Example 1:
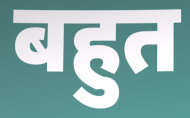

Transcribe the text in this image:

बहुत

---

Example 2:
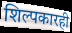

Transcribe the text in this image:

शिल्पकारही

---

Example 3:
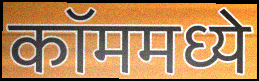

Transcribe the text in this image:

कॉममध्ये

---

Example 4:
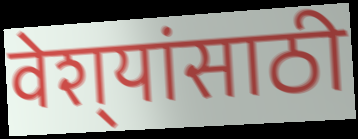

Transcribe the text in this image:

वेश्यांसाठी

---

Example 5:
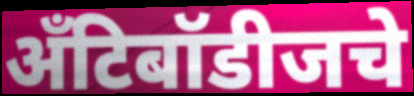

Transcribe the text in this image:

अँटिबॉडीजचे